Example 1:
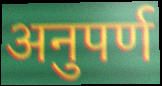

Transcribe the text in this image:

अनुपर्ण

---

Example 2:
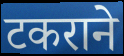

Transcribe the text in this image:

टकराने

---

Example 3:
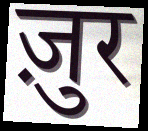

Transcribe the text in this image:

ज़ुर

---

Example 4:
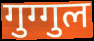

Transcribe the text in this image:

गुग्गुल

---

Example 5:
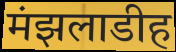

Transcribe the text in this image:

मंझलाडीह